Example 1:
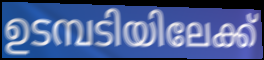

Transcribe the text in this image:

ഉടമ്പടിയിലേക്ക്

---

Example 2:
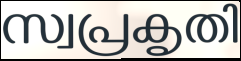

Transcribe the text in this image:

സ്വപ്രകൃതി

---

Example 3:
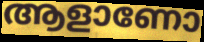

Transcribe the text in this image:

ആളാണോ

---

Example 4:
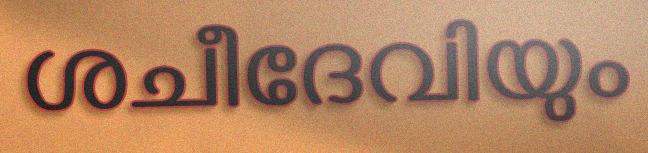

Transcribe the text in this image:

ശചീദേവിയും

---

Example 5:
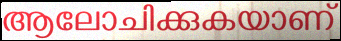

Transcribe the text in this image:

ആലോചിക്കുകയാണ്